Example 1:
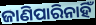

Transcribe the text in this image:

ଜାଣିପାରିନାହିଁ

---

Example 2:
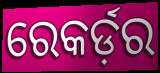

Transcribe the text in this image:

ରେକର୍ଡ଼ର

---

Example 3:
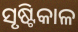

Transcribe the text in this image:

ସୃଷ୍ଟିକାଳ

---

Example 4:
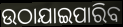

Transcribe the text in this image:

ଉଠାଯାଇପାରିବ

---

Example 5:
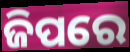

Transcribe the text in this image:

ଜିପରେ